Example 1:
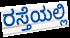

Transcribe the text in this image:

ರಸ್ತೆಯಲ್ಲಿ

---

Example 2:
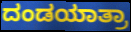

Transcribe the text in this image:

ದಂಡಯಾತ್ರಾ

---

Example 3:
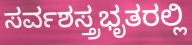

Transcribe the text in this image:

ಸರ್ವಶಸ್ತ್ರಭೃತರಲ್ಲಿ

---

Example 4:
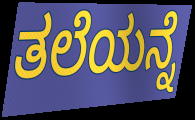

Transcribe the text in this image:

ತಲೆಯನ್ನೆ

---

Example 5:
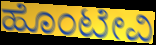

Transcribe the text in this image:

ಹೊಂಟೇವಿ